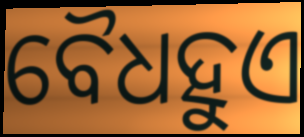
ବୈଧହୁଏ